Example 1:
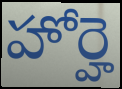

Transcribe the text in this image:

హోర్హె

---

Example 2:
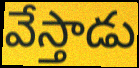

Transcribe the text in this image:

వేస్తాడు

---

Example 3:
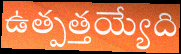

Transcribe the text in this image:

ఉత్పత్తయ్యేది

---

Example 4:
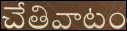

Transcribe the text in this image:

చేతివాటం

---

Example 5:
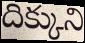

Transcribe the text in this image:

దిక్కుని